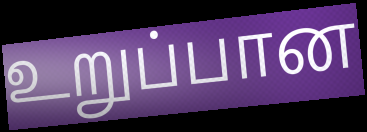
உறுப்பான